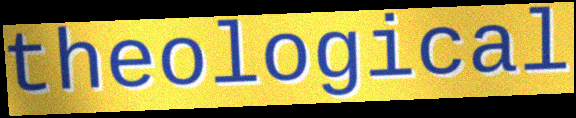
theological